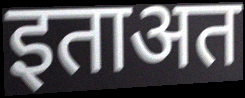
इताअत